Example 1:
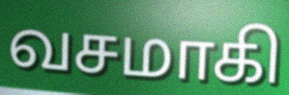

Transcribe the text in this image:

வசமாகி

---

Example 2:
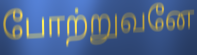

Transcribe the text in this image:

போற்றுவனே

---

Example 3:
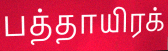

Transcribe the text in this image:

பத்தாயிரக்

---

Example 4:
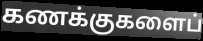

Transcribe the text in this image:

கணக்குகளைப்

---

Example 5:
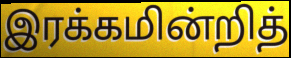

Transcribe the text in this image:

இரக்கமின்றித்